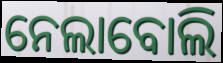
ନେଲାବୋଲି